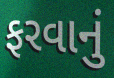
ફરવાનું